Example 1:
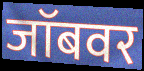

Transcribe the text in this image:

जॉबवर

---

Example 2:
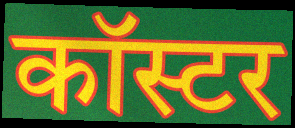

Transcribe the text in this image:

कॉस्टर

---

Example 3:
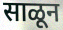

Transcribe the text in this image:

साळून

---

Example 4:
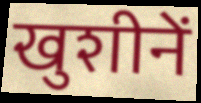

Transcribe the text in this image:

खुशीनें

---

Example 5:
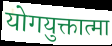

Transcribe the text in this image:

योगयुक्तात्मा